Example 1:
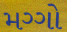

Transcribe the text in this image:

મગ્ગો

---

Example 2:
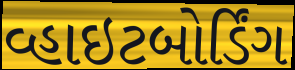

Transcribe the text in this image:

વ્હાઇટબોર્ડિંગ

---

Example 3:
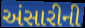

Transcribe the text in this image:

અંસારીની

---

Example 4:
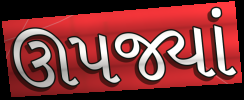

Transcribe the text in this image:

ઊપજ્યાં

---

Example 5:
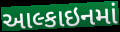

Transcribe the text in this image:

આલ્કાઇનમાં